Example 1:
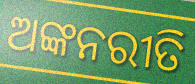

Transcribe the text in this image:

ଅଙ୍କନରୀତି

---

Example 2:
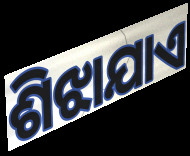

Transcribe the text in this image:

ଶିଝାଯାଏ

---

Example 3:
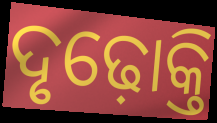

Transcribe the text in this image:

ଦୃଢ଼ୋକ୍ତି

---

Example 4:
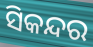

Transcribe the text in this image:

ସିକନ୍ଦର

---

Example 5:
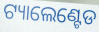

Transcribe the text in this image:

ଟ୍ୟାଲେଣ୍ଟେଡ